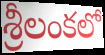
శ్రీలంకలో